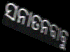
ସନାତନବାବୁ